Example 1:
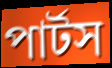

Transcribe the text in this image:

পার্টস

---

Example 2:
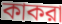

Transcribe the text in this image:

কাকরা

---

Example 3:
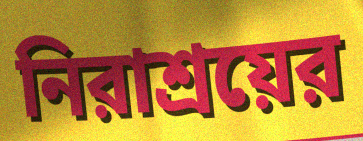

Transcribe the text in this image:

নিরাশ্রয়ের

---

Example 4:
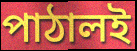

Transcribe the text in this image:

পাঠালই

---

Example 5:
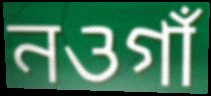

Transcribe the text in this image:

নওগাঁ